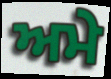
ਅਮੇ